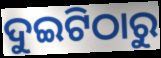
ଦୁଇଟିଠାରୁ